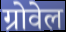
ग्रोवेल